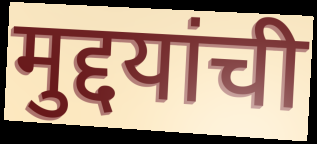
मुद्दयांची